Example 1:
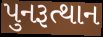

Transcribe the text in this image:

પુનરૂત્થાન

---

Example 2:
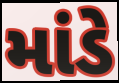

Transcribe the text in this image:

માંડે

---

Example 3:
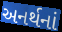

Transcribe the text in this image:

અનર્થનાં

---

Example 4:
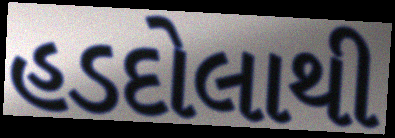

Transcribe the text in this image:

હડદોલાથી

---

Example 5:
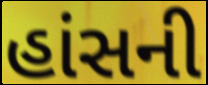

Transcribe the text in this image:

હાંસની